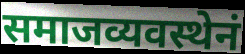
समाजव्यवस्थेनं